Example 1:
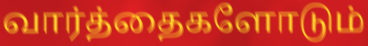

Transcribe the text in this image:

வார்த்தைகளோடும்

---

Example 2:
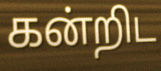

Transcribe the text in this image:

கன்றிட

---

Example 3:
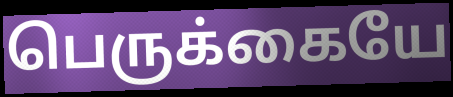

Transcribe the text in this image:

பெருக்கையே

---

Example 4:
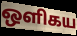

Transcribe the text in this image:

ஒளிகய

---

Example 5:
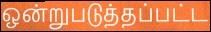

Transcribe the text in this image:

ஒன்றுபடுத்தப்பட்ட